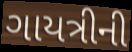
ગાયત્રીની